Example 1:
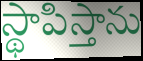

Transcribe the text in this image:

స్థాపిస్తాను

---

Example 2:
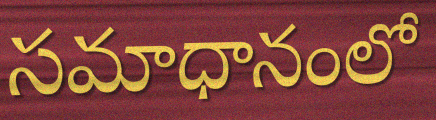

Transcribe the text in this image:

సమాధానంలో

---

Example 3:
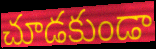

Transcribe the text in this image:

చూడకుండా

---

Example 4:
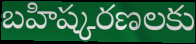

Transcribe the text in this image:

బహిష్కరణలకు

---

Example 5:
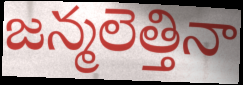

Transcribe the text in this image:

జన్మలెత్తినా